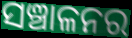
ସଞ୍ଚାଳନର